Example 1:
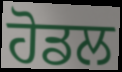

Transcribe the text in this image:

ਹੋਡਲ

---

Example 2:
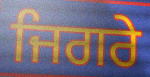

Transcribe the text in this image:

ਜਿਗਰੇ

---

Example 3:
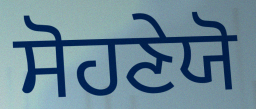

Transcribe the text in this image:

ਸੋਹਣੇਯੋ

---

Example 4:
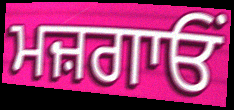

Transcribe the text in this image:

ਮਜ਼ਗਾਓਂ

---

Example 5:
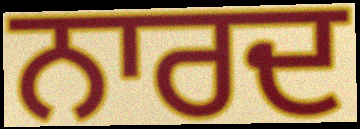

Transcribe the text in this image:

ਨਾਰਦ